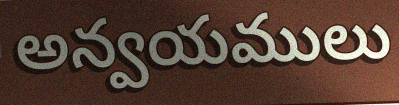
అన్వయములు